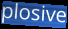
plosive